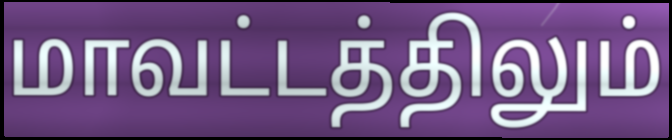
மாவட்டத்திலும்